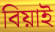
বিয়াই